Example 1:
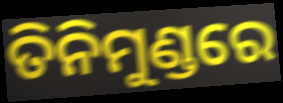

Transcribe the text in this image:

ତିନିମୁଣ୍ଡରେ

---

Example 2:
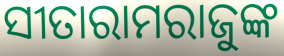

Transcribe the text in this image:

ସୀତାରାମରାଜୁଙ୍କ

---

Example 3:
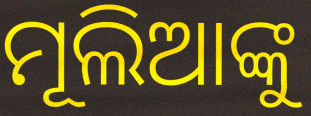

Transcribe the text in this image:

ମୂଲିଆଙ୍କୁ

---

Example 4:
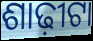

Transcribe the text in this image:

ଶାଢ଼ୀଟା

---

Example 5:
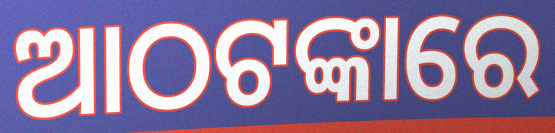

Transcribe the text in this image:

ଆଠଟଙ୍କାରେ